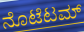
ನೊಟೆಟಮ್